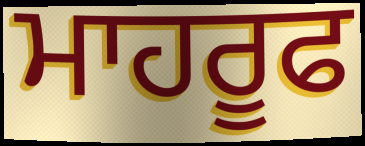
ਮਾਹਰੂਫ